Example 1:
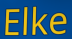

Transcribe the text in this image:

Elke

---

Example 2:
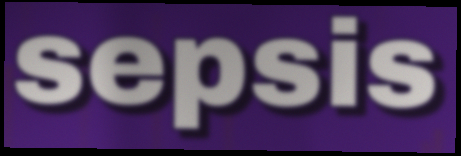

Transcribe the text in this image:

sepsis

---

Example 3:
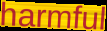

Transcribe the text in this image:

harmful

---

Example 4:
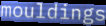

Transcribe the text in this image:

mouldings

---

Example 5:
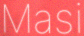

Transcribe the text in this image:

Masi